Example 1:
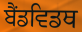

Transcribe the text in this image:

ਬੈਂਡਵਿਡਥ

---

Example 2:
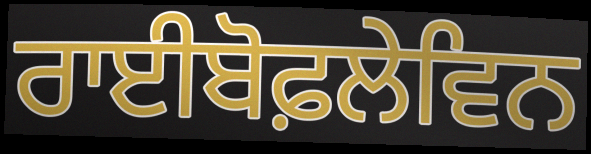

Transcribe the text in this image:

ਰਾਈਬੋਫ਼ਲੇਵਿਨ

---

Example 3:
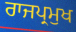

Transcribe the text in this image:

ਰਾਜਪ੍ਰਮੁਖ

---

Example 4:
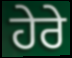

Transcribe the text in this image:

ਹੇਰੇ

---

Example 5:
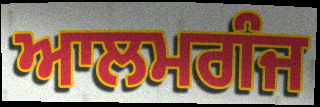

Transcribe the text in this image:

ਆਲਮਗੰਜ